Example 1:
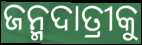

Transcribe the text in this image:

ଜନ୍ମଦାତ୍ରୀକୁ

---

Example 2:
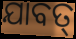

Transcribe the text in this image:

ଯାବତ୍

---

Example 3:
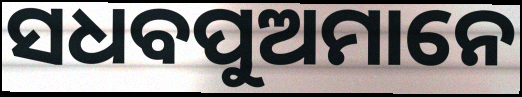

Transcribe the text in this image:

ସଧବପୁଅମାନେ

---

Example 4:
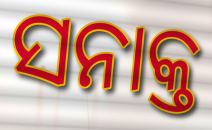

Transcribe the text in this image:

ସନାକ୍ତ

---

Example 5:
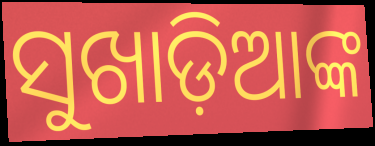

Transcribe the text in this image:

ସୁଖାଡ଼ିଆଙ୍କ